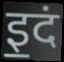
इ॒दं